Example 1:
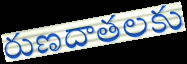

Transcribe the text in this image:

రుణదాతలకు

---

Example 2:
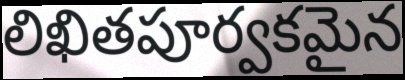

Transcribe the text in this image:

లిఖితపూర్వకమైన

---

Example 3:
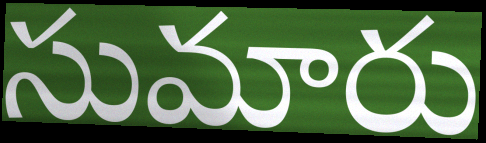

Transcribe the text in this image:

సుమారు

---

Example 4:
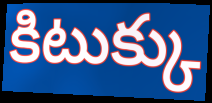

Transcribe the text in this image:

కిటుక్కు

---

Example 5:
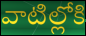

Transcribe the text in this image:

వాటిల్లోకి